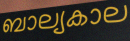
ബാല്യകാല